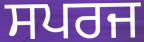
ਸਪਰਜ